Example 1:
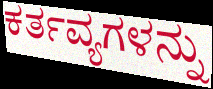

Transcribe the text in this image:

ಕರ್ತವ್ಯಗಳನ್ನು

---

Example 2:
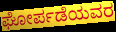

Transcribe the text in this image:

ಘೋರ್ಪಡೆಯವರ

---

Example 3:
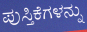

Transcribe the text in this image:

ಪುಸ್ತಿಕೆಗಳನ್ನು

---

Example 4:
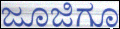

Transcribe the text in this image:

ಜೂಜಿಗೂ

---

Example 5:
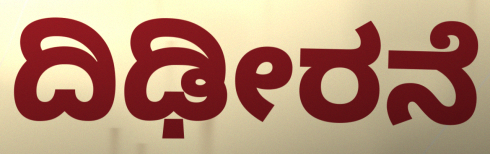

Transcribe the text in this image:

ದಿಢೀರನೆ